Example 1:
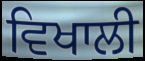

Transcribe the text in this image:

ਵਿਖਾਲੀ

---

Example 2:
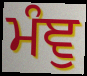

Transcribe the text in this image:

ਮੰਞੁ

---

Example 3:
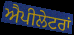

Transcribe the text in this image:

ਐਪੀਲੇਟਰਾਂ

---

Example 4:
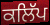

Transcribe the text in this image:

ਕਲਿੱਪ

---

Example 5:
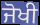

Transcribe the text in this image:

ਜੋਖੀ